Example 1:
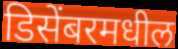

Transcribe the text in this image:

डिसेंबरमधील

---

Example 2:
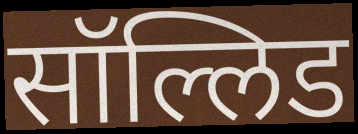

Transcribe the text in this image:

सॉल्लिड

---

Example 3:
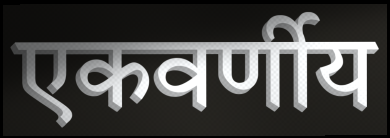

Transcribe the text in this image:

एकवर्णीय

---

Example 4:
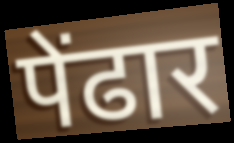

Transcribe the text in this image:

पेंढार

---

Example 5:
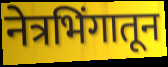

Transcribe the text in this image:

नेत्रभिंगातून